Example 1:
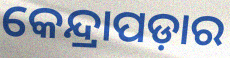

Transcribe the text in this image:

କେନ୍ଦ୍ରାପଡ଼ାର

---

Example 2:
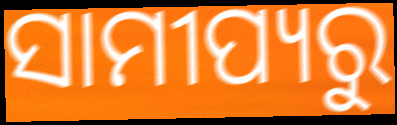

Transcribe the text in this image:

ସାମୀପ୍ୟରୁ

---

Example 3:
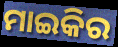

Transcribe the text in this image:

ମାଇକିର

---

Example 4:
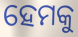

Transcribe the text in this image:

ହେମକୁ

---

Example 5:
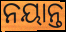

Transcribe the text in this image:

ନୟାନ୍ତ